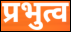
प्रभुत्व